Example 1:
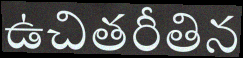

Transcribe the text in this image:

ఉచితరీతిన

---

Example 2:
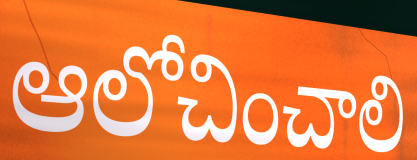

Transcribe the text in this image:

ఆలోచించాలి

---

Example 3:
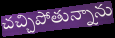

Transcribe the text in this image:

చచ్చిపోతున్నాను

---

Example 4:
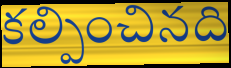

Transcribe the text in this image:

కల్పించినది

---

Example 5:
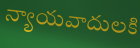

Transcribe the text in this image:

న్యాయవాదులకి